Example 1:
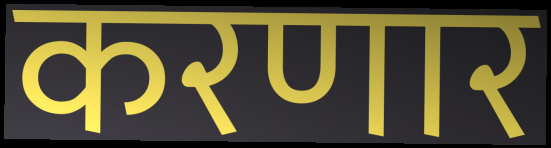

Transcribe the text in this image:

करणार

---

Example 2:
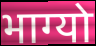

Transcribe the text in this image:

भाग्यो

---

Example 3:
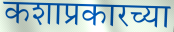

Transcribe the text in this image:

कशाप्रकारच्या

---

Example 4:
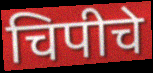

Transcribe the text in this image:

चिपीचे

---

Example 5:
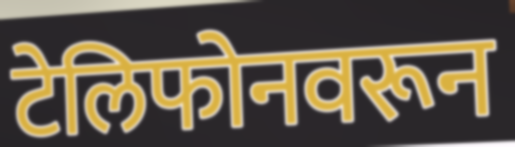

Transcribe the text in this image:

टेलिफोनवरून